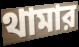
থামার